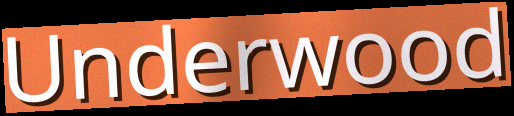
Underwood